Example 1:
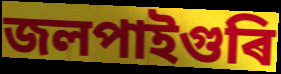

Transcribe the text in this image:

জলপাইগুৰি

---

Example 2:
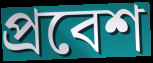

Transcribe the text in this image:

প্ৰবেশ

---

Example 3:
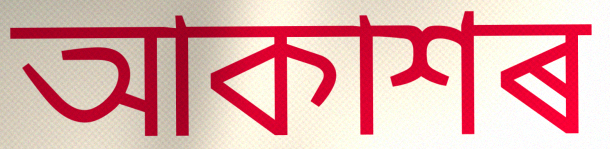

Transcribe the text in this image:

আকাশৰ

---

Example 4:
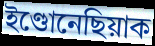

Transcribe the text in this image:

ইণ্ডোনেছিয়াক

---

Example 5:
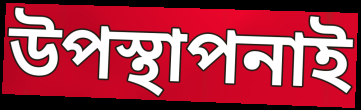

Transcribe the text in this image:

উপস্থাপনাই